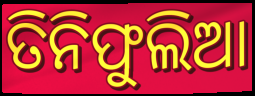
ତିନିଫୁଲିଆ